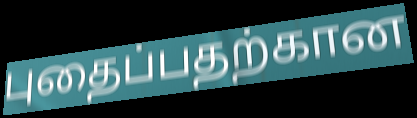
புதைப்பதற்கான